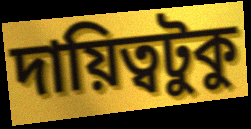
দায়িত্বটুকু